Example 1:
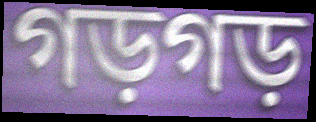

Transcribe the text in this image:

গড়গড়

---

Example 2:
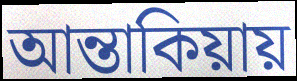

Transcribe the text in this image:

আন্তাকিয়ায়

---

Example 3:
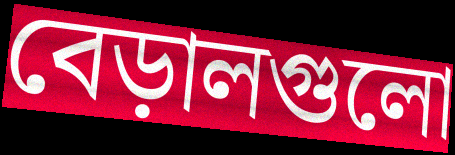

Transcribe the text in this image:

বেড়ালগুলো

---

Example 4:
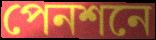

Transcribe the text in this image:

পেনশনে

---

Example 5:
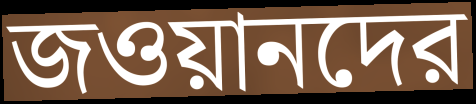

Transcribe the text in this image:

জওয়ানদের